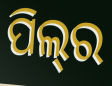
ପିଲ୍‌ର